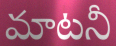
మాటనీ